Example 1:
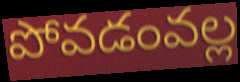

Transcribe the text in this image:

పోవడంవల్ల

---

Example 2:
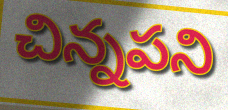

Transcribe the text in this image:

చిన్నపని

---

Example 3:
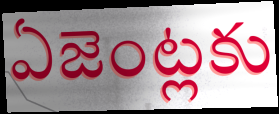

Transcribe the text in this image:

ఏజెంట్లకు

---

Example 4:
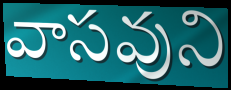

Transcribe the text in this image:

వాసవుని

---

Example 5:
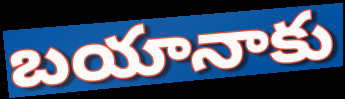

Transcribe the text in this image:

బయానాకు